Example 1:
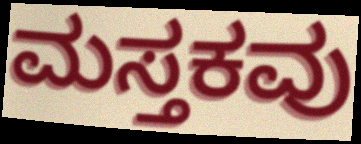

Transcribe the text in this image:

ಮಸ್ತಕವು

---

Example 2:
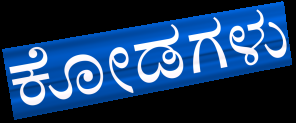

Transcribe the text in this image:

ಕೋಡಗಳು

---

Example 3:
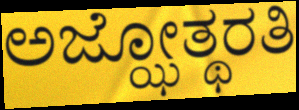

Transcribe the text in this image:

ಅಜ್ಝೋತ್ಥರತಿ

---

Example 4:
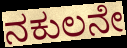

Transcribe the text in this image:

ನಕುಲನೇ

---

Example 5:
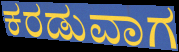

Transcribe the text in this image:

ಕರಡುವಾಗ